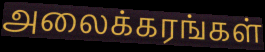
அலைக்கரங்கள்